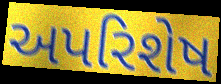
અપરિશેષ